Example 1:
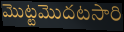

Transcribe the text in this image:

మొట్టమొదటసారి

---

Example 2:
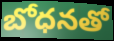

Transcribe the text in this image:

బోధనతో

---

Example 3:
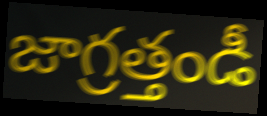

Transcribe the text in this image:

జాగ్రత్తండీ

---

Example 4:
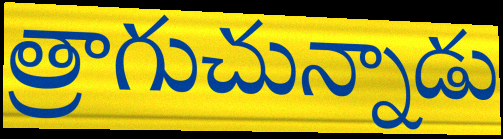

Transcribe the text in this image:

త్రాగుచున్నాడు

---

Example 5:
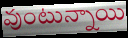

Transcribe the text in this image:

వుంటున్నాయి